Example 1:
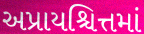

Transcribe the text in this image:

અપ્રાયશ્ચિત્તમાં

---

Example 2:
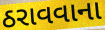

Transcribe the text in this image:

ઠરાવવાના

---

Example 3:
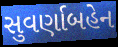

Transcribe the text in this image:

સુવર્ણાબહેન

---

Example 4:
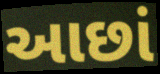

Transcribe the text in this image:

આછાં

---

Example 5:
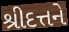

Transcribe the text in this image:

શ્રીદત્તને